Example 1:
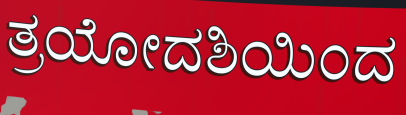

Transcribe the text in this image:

ತ್ರಯೋದಶಿಯಿಂದ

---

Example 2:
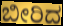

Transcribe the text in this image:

ಬೀರಿದ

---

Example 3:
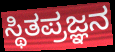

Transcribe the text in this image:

ಸ್ಥಿತಪ್ರಜ್ಞನ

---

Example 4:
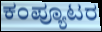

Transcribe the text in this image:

ಕಂಪ್ಯೂಟರ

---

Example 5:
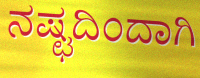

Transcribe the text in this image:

ನಷ್ಟದಿಂದಾಗಿ